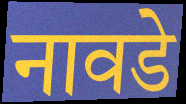
नावडे